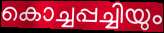
കൊച്ചപ്പച്ചിയും